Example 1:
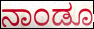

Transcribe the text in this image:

ನಾಂಡೂ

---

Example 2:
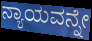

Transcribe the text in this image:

ನ್ಯಾಯವನ್ನೇ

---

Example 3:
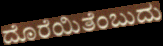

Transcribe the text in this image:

ದೊರೆಯಿತೆಂಬುದು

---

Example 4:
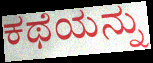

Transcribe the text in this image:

ಕಥೆಯನ್ನು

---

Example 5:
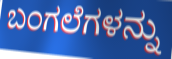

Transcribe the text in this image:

ಬಂಗಲೆಗಳನ್ನು